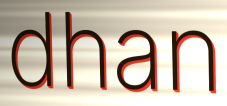
dhan